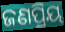
ଜଣପ୍ରିୟ